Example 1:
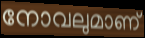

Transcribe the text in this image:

നോവലുമാണ്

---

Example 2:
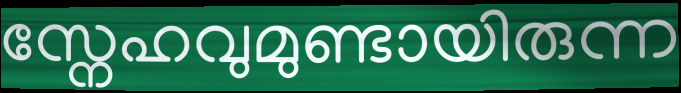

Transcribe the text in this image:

സ്നേഹവുമുണ്ടായിരുന്ന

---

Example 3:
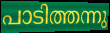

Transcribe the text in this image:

പാടിത്തന്നു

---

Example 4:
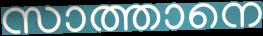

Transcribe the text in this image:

സാത്താനെ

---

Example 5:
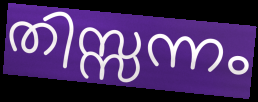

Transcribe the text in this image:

തിസ്സന്നം